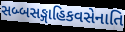
સબ્બસઙ્ગાહિકવસેનાતિ